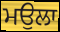
ਮਉਲਾ